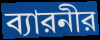
ব্যারনীর